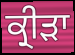
ਕ੍ਰੀੜਾ